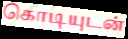
கொடியுடன்